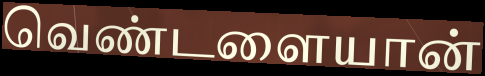
வெண்டளையான்